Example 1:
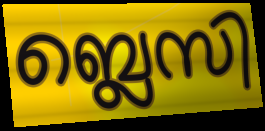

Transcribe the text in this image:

ബ്ലെസി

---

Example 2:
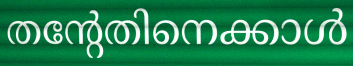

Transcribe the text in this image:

തന്റേതിനെക്കാൾ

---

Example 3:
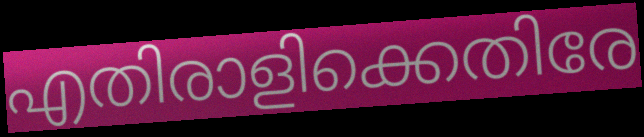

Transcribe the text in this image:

എതിരാളിക്കെതിരേ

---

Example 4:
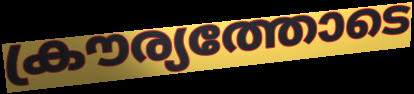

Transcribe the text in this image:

ക്രൗര്യത്തോടെ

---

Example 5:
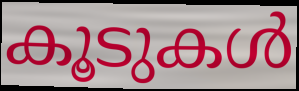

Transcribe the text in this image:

കൂടുകൾ